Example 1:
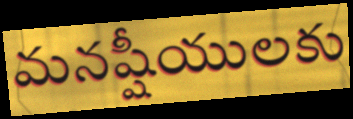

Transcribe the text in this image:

మనష్షీయులకు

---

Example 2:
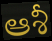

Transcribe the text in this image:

ఆశీ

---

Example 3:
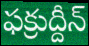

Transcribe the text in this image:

ఫక్రుద్దీన్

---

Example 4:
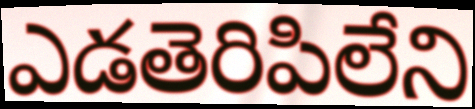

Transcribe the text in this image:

ఎడతెరిపిలేని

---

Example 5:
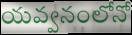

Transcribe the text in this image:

యవ్వనంలోనో